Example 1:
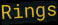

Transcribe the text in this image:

Rings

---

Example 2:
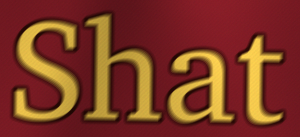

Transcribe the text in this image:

Shat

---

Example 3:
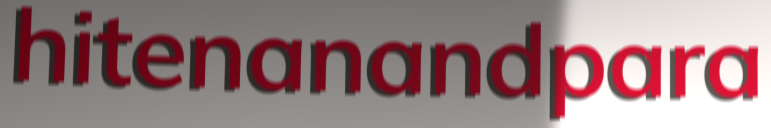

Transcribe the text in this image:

hitenanandpara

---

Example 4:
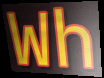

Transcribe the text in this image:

Wh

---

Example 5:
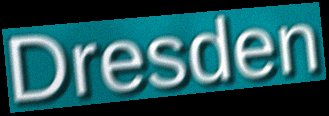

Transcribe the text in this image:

Dresden